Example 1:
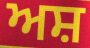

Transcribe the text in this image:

ਅਸ਼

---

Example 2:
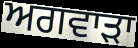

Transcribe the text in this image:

ਅਗਵਾੜਾ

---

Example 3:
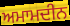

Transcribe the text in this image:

ਅਮਾਮਦੀਨ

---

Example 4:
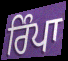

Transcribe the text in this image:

ਰਿੰਪਾ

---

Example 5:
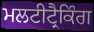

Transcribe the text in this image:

ਮਲਟੀਟ੍ਰੈਕਿੰਗ